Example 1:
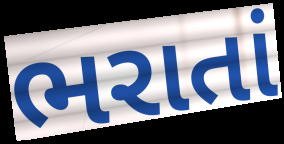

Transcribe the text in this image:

ભરાતાં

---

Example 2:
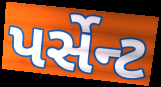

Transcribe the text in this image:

પર્સેન્ટ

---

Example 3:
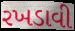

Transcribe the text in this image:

રખડાવી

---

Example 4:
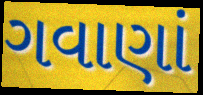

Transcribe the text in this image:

ગવાણાં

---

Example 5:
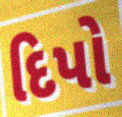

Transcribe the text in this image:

દિપો